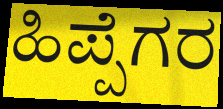
ಹಿಪ್ಪೆಗರ